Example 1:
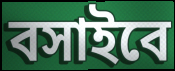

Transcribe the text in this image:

বসাইবে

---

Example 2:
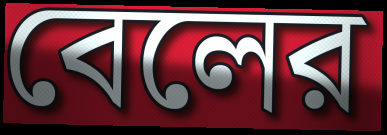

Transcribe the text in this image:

বেলের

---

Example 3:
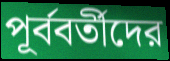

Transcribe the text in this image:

পূর্ববর্তীদের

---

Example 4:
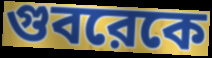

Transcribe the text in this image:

গুবরেকে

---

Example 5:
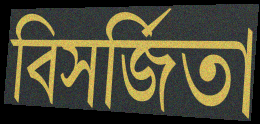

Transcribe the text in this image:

বিসর্জিতা